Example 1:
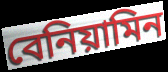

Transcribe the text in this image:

বেনিয়ামিন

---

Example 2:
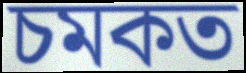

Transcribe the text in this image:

চমকত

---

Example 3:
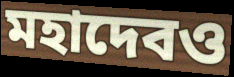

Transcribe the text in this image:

মহাদেবও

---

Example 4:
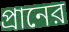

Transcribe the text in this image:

প্রানের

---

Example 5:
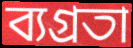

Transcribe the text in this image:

ব্যগ্রতা